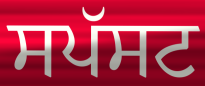
ਸਪੱਸਟ